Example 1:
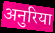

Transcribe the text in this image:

अनुरिया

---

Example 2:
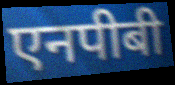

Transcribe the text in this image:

एनपीबी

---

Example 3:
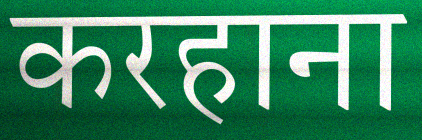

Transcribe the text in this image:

करहाना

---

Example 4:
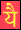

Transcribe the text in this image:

यै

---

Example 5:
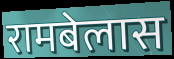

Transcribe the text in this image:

रामबेलास